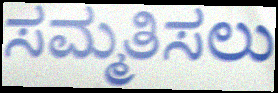
ಸಮ್ಮತಿಸಲು